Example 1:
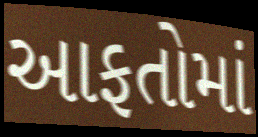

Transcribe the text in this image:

આફતોમાં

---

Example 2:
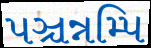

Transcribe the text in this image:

પઞ્ચન્નમ્પિ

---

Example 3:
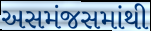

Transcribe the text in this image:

અસમંજસમાંથી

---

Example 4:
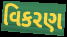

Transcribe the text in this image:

વિકરણ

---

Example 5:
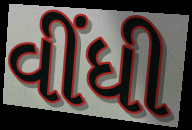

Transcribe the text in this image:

વીંધી